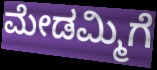
ಮೇಡಮ್ಮಿಗೆ